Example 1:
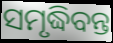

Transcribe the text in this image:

ସମୃଦ୍ଧିବନ୍ତ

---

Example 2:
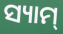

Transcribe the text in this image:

ସ୍ୟାମ୍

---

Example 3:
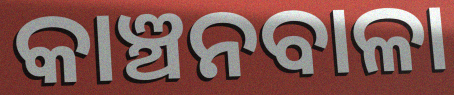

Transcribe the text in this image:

କାଞ୍ଚନବାଳା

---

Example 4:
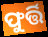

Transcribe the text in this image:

ଫୁର୍ତ୍ତି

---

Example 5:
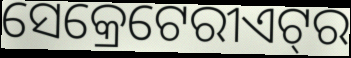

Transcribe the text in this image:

ସେକ୍ରେଟେରୀଏଟ୍‍ର